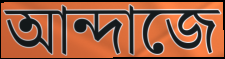
আন্দাজে